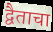
द्वैताचा